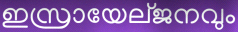
ഇസ്രായേല്ജനവും